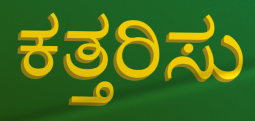
ಕತ್ತರಿಸು